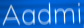
Aadmi